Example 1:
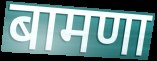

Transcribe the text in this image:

बामणा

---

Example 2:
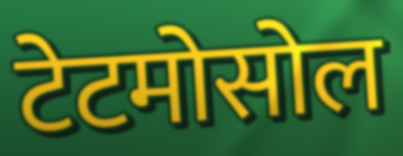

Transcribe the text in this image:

टेटमोसोल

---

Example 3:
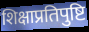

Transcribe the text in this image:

शिक्षाप्रतिपुष्टि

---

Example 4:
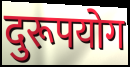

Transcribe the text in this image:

दुरूपयोग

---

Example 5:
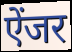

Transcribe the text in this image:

ऐंजर